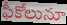
ఫీకోలునూ